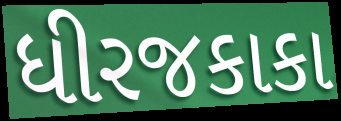
ધીરજકાકા